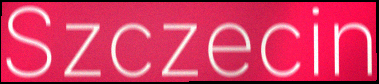
Szczecin